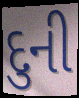
દુની